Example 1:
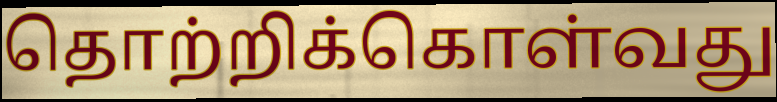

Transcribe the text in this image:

தொற்றிக்கொள்வது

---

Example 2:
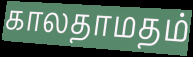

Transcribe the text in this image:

காலதாமதம்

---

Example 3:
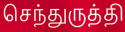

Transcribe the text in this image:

செந்துருத்தி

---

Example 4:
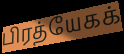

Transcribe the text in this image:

பிரத்யேகக்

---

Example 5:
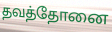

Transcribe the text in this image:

தவத்தோனை